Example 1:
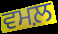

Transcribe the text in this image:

ਵਮਲ਼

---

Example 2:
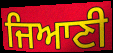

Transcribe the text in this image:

ਜਿਆਣੀ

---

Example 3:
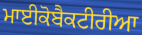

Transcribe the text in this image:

ਮਾਈਕੋਬੈਕਟੀਰੀਆ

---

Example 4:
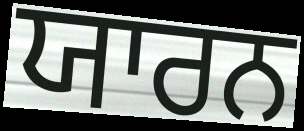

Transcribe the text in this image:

ਯਾਰਨ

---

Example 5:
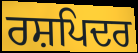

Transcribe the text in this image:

ਰਸ਼ਪਿਦਰ